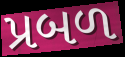
પ્રબળ